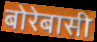
बोरेबासी